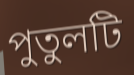
পুতুলটি